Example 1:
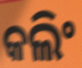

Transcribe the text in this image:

କଲିଂ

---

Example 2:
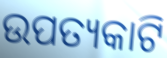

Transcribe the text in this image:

ଉପତ୍ୟକାଟି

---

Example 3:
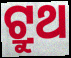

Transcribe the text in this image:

ଟ୍ରୁଥ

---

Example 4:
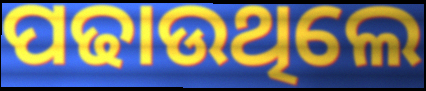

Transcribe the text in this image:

ପଢାଉଥିଲେ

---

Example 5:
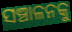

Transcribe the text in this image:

ସଞ୍ଚାଳନକୁ